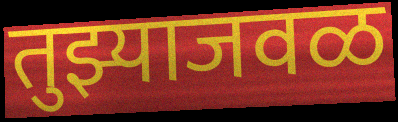
तुझ्याजवळ